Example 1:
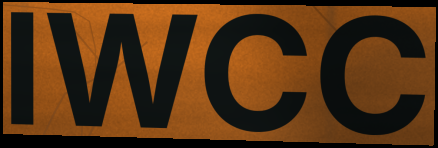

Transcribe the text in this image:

IWCC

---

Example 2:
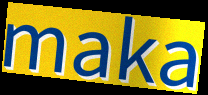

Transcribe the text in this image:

maka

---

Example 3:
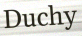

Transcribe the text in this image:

Duchy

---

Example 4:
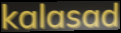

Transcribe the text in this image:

kalasad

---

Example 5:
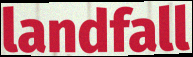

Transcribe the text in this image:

landfall